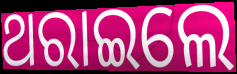
ଥରାଇଲେ